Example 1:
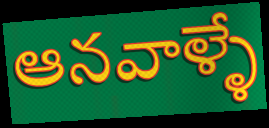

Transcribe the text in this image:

ఆనవాళ్ళే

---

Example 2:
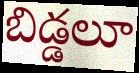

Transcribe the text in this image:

బిడ్డలూ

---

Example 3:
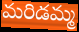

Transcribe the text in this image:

మరిడమ్మ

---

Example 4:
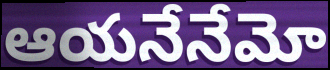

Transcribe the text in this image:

ఆయనేనేమో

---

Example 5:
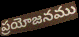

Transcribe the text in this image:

ప్రయోజనము